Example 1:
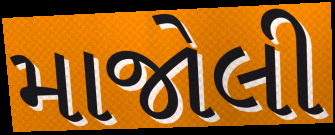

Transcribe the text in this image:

માજોલી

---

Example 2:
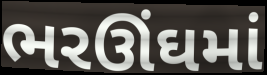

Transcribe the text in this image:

ભરઊંઘમાં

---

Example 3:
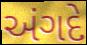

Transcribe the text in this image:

અંગદે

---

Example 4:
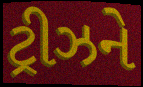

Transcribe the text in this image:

ટ્રીઝને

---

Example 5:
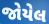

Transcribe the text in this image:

જોયેલ